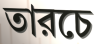
তারচে